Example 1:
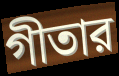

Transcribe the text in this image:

গীতার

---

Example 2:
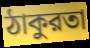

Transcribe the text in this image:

ঠাকুরতা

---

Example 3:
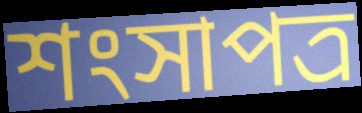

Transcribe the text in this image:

শংসাপত্র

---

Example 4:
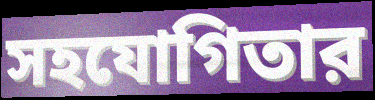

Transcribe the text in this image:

সহযোগিতার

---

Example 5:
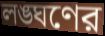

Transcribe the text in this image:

লঙ্ঘণের